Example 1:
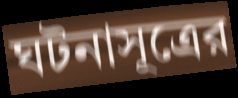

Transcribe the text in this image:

ঘটনাসূত্রের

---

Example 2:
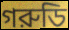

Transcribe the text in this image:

গরুডি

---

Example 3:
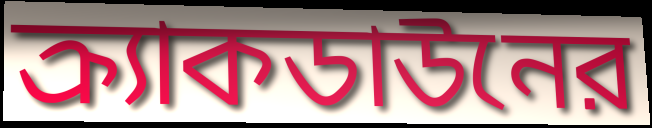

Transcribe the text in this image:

ক্র্যাকডাউনের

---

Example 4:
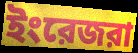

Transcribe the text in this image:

ইংরেজরা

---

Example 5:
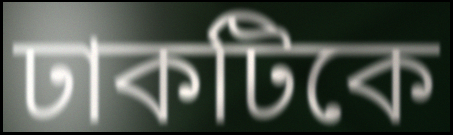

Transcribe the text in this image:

ঢাকটিকে